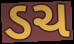
ડચ